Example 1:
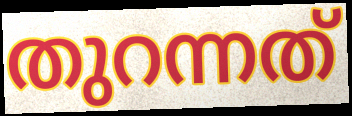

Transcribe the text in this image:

തുറന്നത്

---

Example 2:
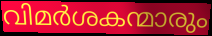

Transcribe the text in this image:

വിമർശകന്മാരും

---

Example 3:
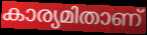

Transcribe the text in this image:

കാര്യമിതാണ്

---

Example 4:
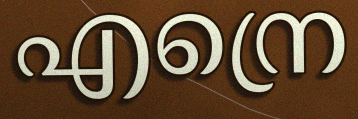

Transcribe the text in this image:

എന്രെ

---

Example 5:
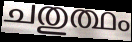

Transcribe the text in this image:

ചതുത്ഥം